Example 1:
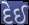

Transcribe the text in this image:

દેઈ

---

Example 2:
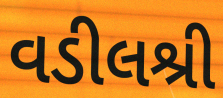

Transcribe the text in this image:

વડીલશ્રી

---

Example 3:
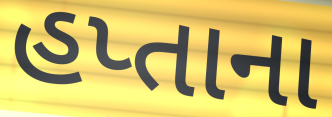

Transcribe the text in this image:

હપ્તાના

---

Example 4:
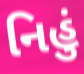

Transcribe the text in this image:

નિહું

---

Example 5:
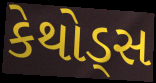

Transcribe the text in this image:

કેથોડ્સ